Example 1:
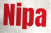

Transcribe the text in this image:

Nipa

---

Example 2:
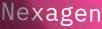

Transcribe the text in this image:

Nexagen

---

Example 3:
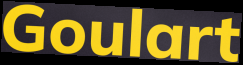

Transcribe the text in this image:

Goulart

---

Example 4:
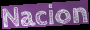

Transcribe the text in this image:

Nacion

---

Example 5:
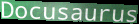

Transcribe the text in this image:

Docusaurus